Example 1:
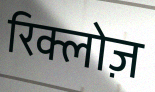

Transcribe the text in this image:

रिक्लोज़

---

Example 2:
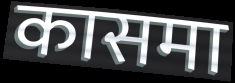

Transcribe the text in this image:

कासमा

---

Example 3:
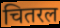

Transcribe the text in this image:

चितरल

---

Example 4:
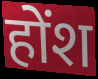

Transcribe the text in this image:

होंश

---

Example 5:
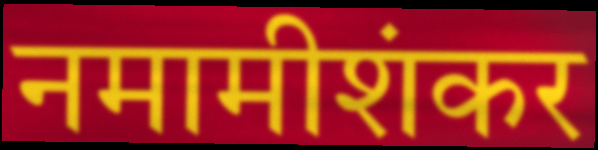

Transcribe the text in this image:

नमामीशंकर